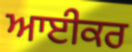
ਆਈਕਰ